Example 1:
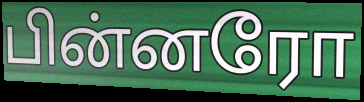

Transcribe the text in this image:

பின்னரோ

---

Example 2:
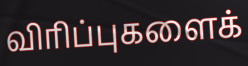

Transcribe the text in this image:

விரிப்புகளைக்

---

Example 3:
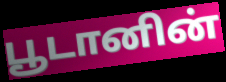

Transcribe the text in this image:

பூடானின்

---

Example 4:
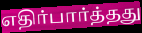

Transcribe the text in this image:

எதிர்பார்த்தது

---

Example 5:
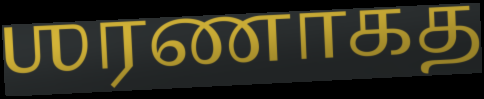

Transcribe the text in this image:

ஶரணாகத